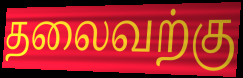
தலைவற்கு